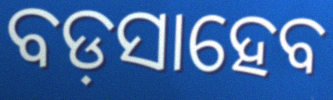
ବଡ଼ସାହେବ